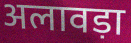
अलावड़ा